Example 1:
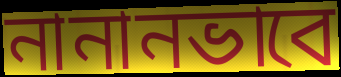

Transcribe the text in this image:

নানানভাবে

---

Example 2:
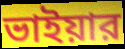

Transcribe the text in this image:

ভাইয়ার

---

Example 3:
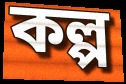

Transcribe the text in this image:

কল্প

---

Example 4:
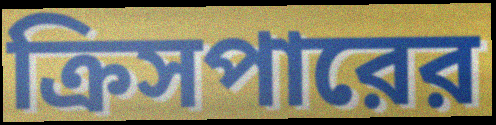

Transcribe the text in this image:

ক্রিসপারের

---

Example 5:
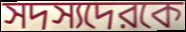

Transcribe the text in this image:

সদস্যদেরকে